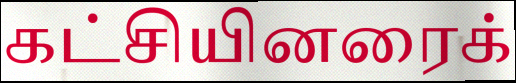
கட்சியினரைக்